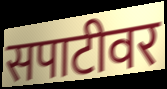
सपाटीवर